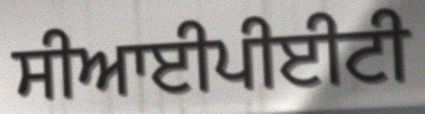
ਸੀਆਈਪੀਈਟੀ